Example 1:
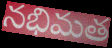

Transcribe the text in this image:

నభిమత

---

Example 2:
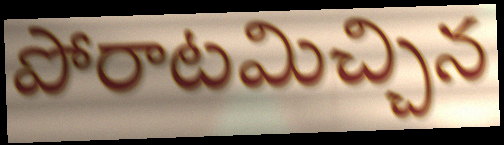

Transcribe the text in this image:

పోరాటమిచ్చిన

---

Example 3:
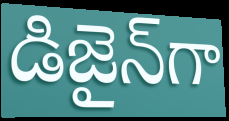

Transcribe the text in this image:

డిజైన్‌గా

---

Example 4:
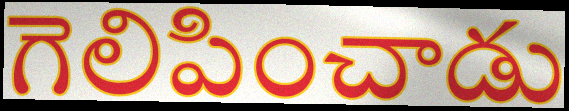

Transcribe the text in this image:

గెలిపించాడు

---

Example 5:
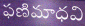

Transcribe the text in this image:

ఫణిమాధవి